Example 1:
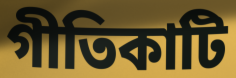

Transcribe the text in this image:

গীতিকাটি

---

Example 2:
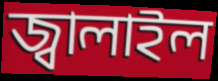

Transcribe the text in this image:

জ্বালাইল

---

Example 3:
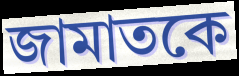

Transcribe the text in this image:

জামাতকে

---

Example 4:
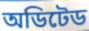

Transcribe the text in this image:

অডিটেড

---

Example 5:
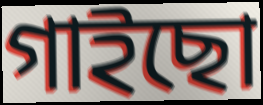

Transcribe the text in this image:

গাইছো